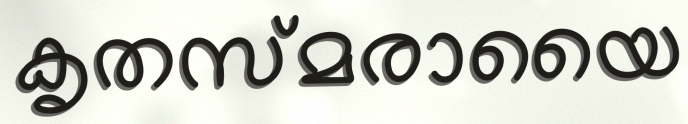
കൃതസ്മരായൈ